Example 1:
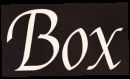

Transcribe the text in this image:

Box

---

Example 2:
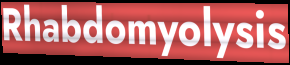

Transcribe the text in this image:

Rhabdomyolysis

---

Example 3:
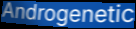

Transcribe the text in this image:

Androgenetic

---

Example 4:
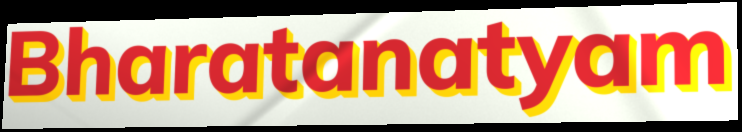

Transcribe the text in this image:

Bharatanatyam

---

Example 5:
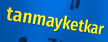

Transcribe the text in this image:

tanmayketkar